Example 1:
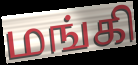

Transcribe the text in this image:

மங்கி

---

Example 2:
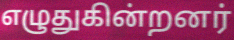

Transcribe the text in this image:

எழுதுகின்றனர்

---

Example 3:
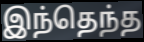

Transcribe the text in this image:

இந்தெந்த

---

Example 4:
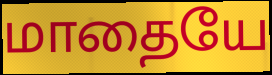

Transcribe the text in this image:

மாதையே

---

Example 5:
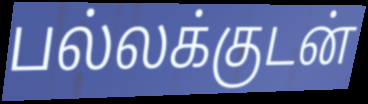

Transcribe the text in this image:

பல்லக்குடன்